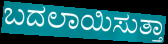
ಬದಲಾಯಿಸುತ್ತಾ